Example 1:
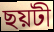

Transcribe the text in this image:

ছয়টী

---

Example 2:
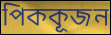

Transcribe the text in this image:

পিককূজন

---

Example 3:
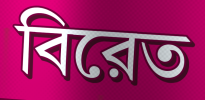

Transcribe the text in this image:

বিরেত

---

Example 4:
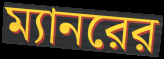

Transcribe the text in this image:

ম্যানরের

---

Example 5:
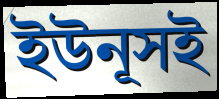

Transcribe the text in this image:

ইউনূসই